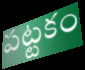
పట్టకం